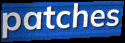
patches